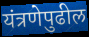
यंत्रणेपुढील